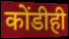
कोंडीही